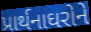
પ્રાર્થનાઘરોને